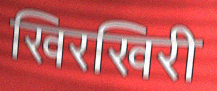
खिरखिरी